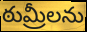
ఠుమ్రీలను